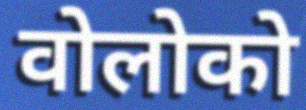
वोलोको